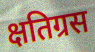
क्षतिग्रस